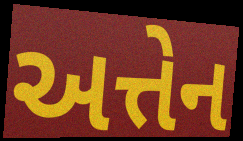
અત્તેન